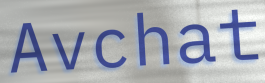
Avchat